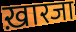
ख़ारजा